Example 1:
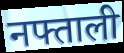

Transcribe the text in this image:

नफ्ताली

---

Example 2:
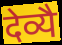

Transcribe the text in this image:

देव्यै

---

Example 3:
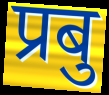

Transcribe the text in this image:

प्रबु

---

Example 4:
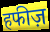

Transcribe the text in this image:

हफीज़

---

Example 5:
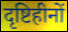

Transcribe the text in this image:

दृष्टिहीनों